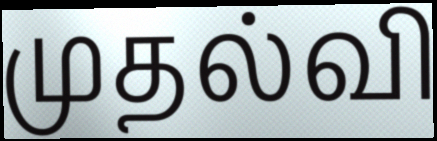
முதல்வி